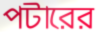
পটারের